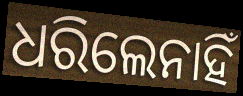
ଧରିଲେନାହିଁ